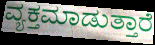
ವ್ಯಕ್ತಮಾಡುತ್ತಾರೆ